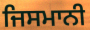
ਜਿਸਮਾਨੀ